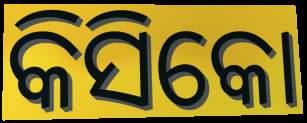
କିସିକୋ